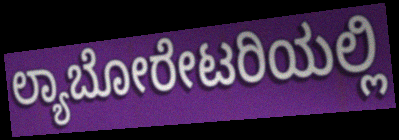
ಲ್ಯಾಬೋರೇಟರಿಯಲ್ಲಿ